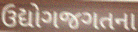
ઉદ્યોગજગતના